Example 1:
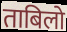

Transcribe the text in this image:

ताबिलो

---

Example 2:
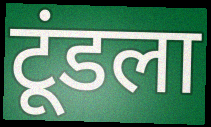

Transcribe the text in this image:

टूंडला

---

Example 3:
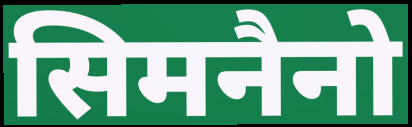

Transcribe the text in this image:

सिमनैनो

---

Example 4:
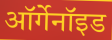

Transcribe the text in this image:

ऑर्गेनॉइड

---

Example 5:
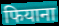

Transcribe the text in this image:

फियाना